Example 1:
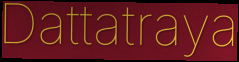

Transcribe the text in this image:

Dattatraya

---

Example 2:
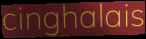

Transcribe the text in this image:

cinghalais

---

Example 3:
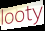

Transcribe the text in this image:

looty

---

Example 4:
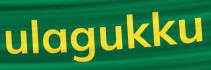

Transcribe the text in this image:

ulagukku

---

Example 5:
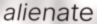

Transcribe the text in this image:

alienate